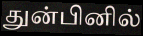
துன்பினில்